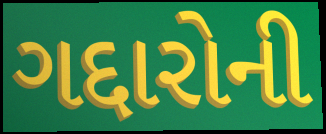
ગદ્દારોની